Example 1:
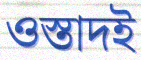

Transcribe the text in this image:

ওস্তাদই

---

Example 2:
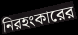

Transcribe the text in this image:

নিরহংকারের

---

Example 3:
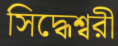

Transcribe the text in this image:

সিদ্ধেশ্বরী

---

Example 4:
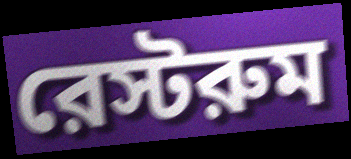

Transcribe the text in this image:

রেস্টরুম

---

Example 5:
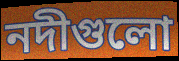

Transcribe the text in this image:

নদীগুলো